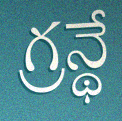
గ్రన్థే